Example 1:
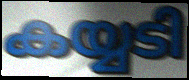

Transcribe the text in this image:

കയ്യടി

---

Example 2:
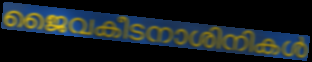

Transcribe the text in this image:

ജൈവകീടനാശിനികൾ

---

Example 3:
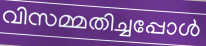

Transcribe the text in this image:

വിസമ്മതിച്ചപ്പോൾ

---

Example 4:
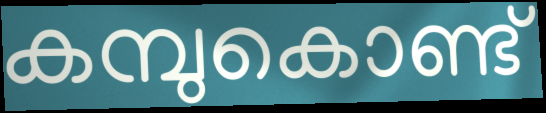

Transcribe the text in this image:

കമ്പുകൊണ്ട്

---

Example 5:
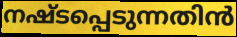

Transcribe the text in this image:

നഷ്ടപ്പെടുന്നതിൻ